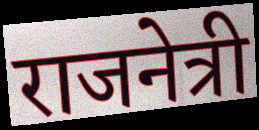
राजनेत्री